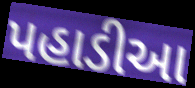
પહાડીઆ